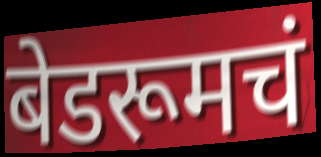
बेडरूमचं